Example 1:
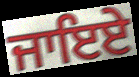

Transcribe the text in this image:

ਜਾਇਏ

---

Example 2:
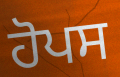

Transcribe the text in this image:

ਹੋਪਸ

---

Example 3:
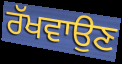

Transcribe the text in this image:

ਰੱਖਵਾਉਣ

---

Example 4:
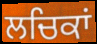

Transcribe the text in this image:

ਲਚਿਕਾਂ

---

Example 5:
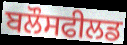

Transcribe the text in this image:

ਬਲੌਸਫੀਲਡ